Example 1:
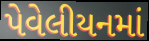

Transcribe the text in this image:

પેવેલીયનમાં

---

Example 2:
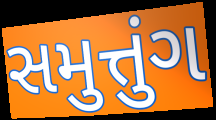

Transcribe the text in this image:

સમુત્તુંગ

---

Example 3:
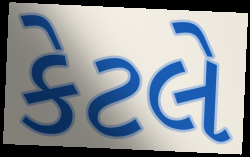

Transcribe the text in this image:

કેટલે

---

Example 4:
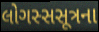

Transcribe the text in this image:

લોગસ્સસૂત્રના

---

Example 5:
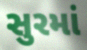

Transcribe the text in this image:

સુરમાં